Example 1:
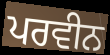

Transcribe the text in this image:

ਪਰਵੀਨ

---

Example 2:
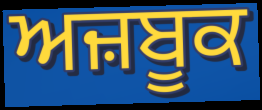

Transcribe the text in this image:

ਅਜ਼ਬੂਕ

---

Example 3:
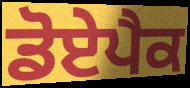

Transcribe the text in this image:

ਡੋਏਪੈਕ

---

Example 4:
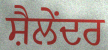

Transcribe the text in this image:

ਸ਼ੈਲੇਂਦਰ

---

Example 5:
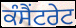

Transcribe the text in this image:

ਕੰਸੈਂਟਰੇਟ